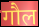
गौल